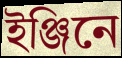
ইঞ্জিনে